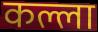
कल्ला